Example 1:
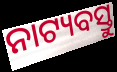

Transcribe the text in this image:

ନାଟ୍ୟବସ୍ତୁ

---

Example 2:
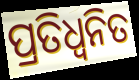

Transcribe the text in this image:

ପ୍ରତିଧ୍ଵନିତ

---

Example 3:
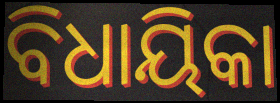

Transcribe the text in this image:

ବିଧାୟିକା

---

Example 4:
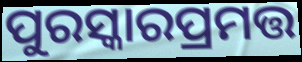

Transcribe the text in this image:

ପୁରସ୍କାରପ୍ରମତ୍ତ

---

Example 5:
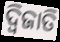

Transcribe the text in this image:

ଦ୍ୱିଜାତି